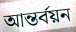
আন্তর্বয়ন